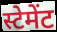
स्टेमेंट